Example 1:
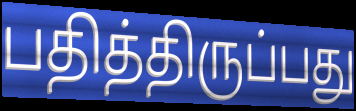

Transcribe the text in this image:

பதித்திருப்பது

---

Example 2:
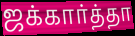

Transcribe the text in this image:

ஜக்கார்த்தா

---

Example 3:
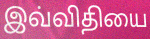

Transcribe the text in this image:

இவ்விதியை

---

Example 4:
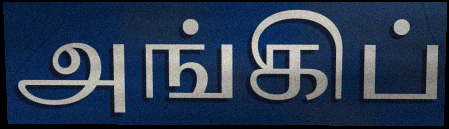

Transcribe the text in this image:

அங்கிப்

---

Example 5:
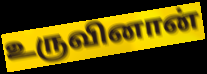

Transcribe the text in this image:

உருவினான்